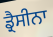
ਡ੍ਰੈਸੀਨਾ